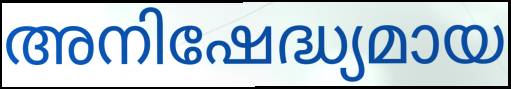
അനിഷേദ്ധ്യമായ